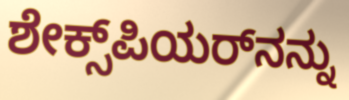
ಶೇಕ್ಸ್‌ಪಿಯರ್‌ನನ್ನು